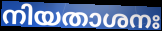
നിയതാശനഃ